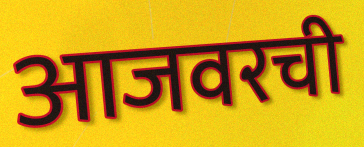
आजवरची